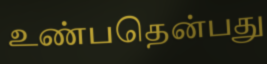
உண்பதென்பது